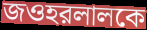
জওহরলালকে